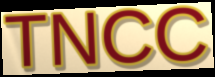
TNCC